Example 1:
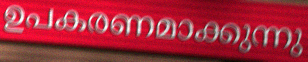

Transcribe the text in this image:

ഉപകരണമാക്കുന്നു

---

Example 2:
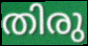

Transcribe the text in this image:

തിരു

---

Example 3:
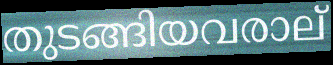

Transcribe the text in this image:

തുടങ്ങിയവരാല്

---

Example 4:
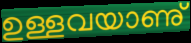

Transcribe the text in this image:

ഉള്ളവയാണു്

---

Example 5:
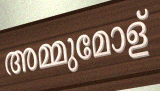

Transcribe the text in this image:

അമ്മുമോള്